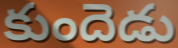
కుందెడు